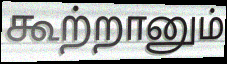
கூற்றானும்